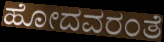
ಹೋದವರಂತೆ